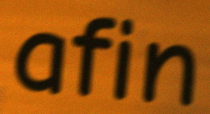
afin